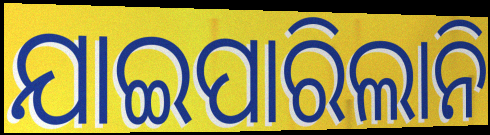
ଯାଇପାରିଲାନି